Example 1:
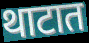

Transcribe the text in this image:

थाटात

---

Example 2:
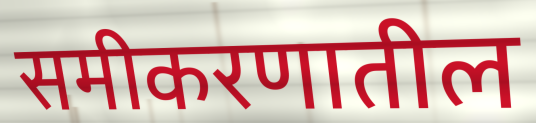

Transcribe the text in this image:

समीकरणातील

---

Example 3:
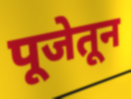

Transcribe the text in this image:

पूजेतून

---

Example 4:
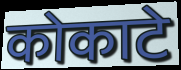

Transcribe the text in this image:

कोकाटे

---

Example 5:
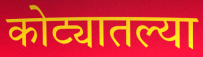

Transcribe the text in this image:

कोट्यातल्या